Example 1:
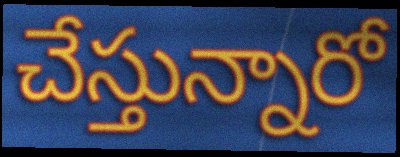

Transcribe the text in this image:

చేస్తున్నారో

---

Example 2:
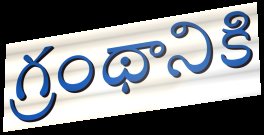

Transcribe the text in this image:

గ్రంథానికి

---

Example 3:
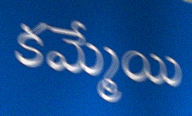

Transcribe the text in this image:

కమ్మేయి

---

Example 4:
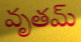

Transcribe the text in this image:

వృతమ్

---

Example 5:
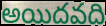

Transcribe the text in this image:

అయిదవది